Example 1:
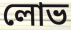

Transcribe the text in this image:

লোভ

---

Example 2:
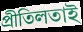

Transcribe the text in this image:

প্ৰীতিলতাই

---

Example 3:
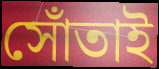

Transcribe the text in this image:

সোঁতাই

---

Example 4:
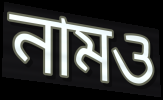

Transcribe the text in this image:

নামও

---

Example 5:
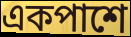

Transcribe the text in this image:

একপাশে